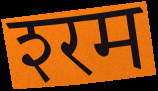
श्रम